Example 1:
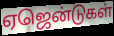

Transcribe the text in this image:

ஏஜென்டுகள்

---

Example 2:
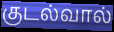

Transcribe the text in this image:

குடல்வால்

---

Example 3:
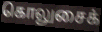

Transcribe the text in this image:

கொலுசைக்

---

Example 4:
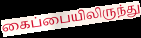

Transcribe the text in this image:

கைப்பையிலிருந்து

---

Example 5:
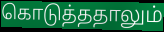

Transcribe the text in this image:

கொடுத்ததாலும்